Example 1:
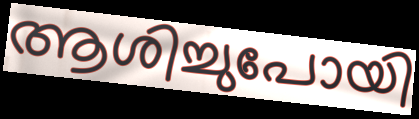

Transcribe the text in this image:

ആശിച്ചുപോയി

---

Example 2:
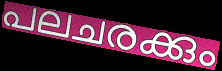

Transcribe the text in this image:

പലചരക്കും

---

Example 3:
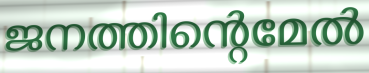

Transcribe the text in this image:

ജനത്തിന്റെമേൽ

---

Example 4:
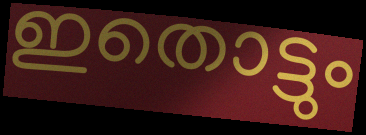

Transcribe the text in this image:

ഇതൊട്ടും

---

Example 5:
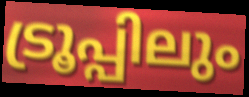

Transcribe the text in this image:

ട്രൂപ്പിലും